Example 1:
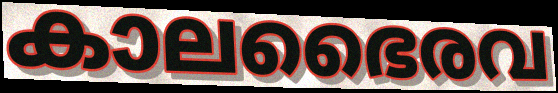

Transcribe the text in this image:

കാലഭൈരവ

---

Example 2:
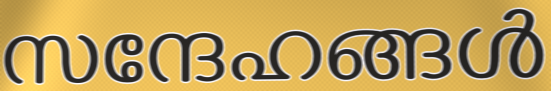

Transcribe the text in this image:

സന്ദേഹങ്ങൾ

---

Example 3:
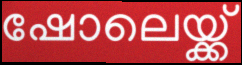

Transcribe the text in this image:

ഷോലെയ്ക്ക്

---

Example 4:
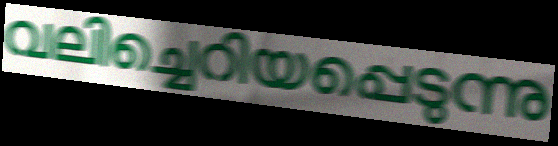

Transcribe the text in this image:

വലിച്ചെറിയപ്പെടുന്നു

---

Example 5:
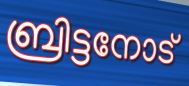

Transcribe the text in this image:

ബ്രിട്ടനോട്